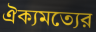
ঐক্যমত্যের